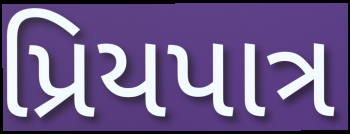
પ્રિયપાત્ર